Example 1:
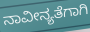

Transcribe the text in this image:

ನಾವೀನ್ಯತೆಗಾಗಿ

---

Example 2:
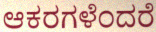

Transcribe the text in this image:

ಆಕರಗಳೆಂದರೆ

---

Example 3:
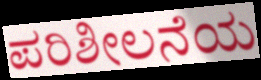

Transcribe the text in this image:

ಪರಿಶೀಲನೆಯ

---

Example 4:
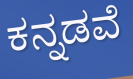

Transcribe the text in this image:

ಕನ್ನಡವೆ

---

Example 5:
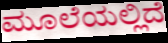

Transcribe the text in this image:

ಮೂಲೆಯಲ್ಲಿದೆ